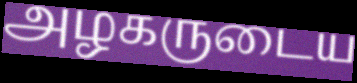
அழகருடைய